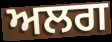
ਅਲਗ